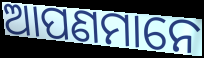
ଆପଣମାନେ